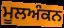
ਮੂਲਅੰਕਨ